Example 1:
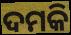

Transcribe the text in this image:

ଦମକି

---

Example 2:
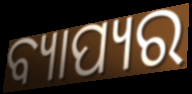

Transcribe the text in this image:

ବ୍ୟାପ୍ୟର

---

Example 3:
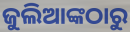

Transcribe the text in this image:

ଜୁଲିଆଙ୍କଠାରୁ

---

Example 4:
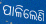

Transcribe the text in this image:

ପାଳିଲେଣି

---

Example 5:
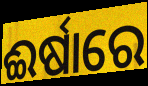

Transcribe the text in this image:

ଈର୍ଷାରେ